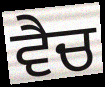
ਵੈਚ